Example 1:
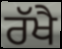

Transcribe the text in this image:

ਰੱਖੈ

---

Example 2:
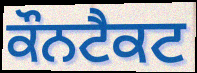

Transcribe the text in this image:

ਕੌਨਟੈਕਟ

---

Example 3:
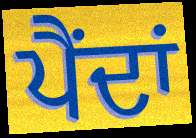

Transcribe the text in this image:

ਪੈਂਦਾਂ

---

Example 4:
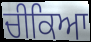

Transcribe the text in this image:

ਚੀਕਿਆ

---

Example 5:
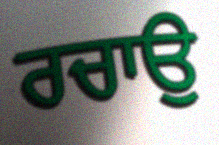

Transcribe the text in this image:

ਰਚਾਉ